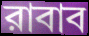
রাবাব